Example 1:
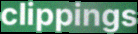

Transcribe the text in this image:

clippings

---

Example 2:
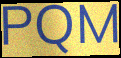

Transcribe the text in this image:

PQM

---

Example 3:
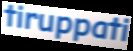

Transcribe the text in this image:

tiruppati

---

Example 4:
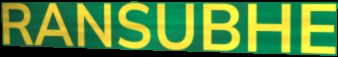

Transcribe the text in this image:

RANSUBHE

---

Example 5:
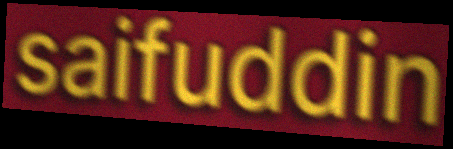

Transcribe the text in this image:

saifuddin